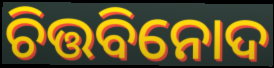
ଚିତ୍ତବିନୋଦ